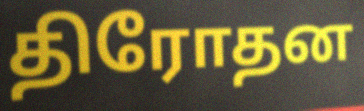
திரோதன